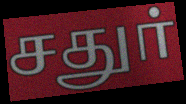
சதுர்